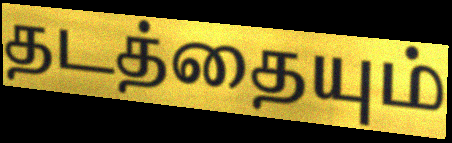
தடத்தையும்